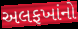
અલફખાંનો